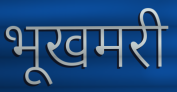
भूखमरी